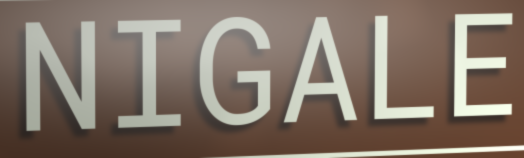
NIGALE